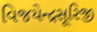
વિજયેન્દ્રસૂરિજી